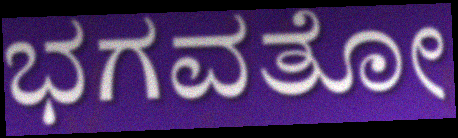
ಭಗವತೋ